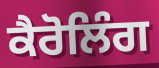
ਕੈਰੋਲਿੰਗ